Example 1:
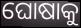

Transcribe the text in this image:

ଘୋଷାକୁ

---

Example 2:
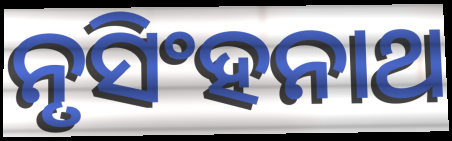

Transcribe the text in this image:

ନୃସିଂହନାଥ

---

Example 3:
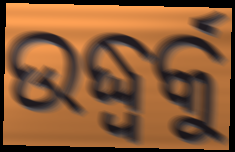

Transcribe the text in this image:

ଉଦ୍ଧ୍ୱର୍କୁ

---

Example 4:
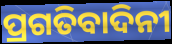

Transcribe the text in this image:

ପ୍ରଗତିବାଦିନୀ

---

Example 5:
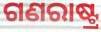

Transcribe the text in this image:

ଗଣରାଷ୍ଟ୍ର